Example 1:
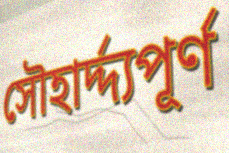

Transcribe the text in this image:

সৌহার্দ্দ্যপূর্ণ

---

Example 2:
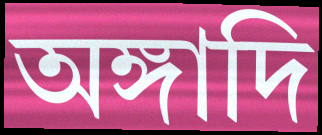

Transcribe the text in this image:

অঙ্গাদি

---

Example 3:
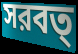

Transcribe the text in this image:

সরবত্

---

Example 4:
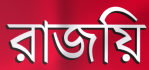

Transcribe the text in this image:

রাজয়ি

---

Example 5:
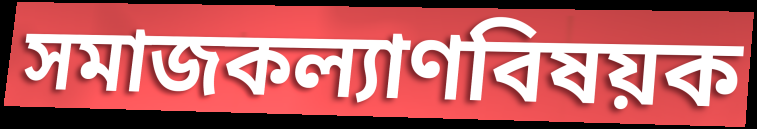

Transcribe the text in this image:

সমাজকল্যাণবিষয়ক